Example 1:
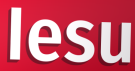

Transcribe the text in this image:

Iesu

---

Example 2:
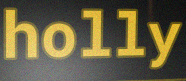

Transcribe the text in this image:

holly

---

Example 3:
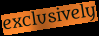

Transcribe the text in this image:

exclusively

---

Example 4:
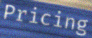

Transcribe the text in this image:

Pricing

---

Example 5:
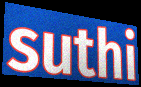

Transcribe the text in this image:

suthi